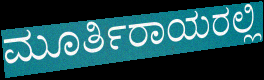
ಮೂರ್ತಿರಾಯರಲ್ಲಿ